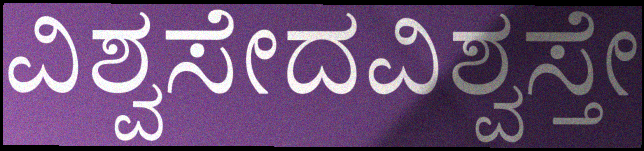
ವಿಶ್ವಸೇದವಿಶ್ವಸ್ತೇ